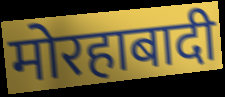
मोरहाबादी